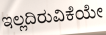
ಇಲ್ಲದಿರುವಿಕೆಯೇ